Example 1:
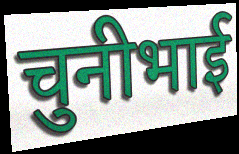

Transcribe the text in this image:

चुनीभाई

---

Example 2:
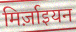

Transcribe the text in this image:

मिर्ज़ाइयन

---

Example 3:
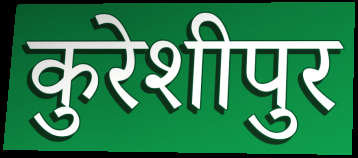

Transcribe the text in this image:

कुरेशीपुर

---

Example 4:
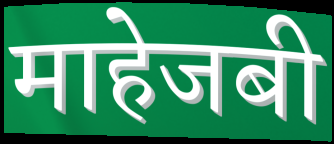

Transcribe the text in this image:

माहेजबी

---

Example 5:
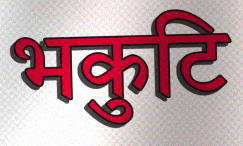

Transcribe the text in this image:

भकुटि